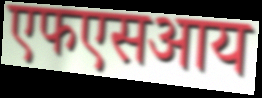
एफएसआय